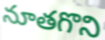
నూతగొని